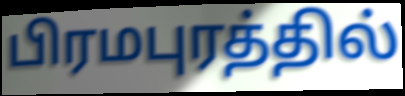
பிரமபுரத்தில்